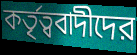
কর্তৃত্ববাদীদের